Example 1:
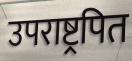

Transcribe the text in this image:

उपराष्ट्रपित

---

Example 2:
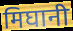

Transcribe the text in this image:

मिघानी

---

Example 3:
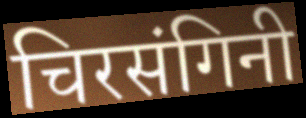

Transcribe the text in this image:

चिरसंगिनी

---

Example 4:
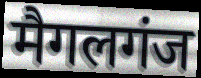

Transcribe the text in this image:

मैगलगंज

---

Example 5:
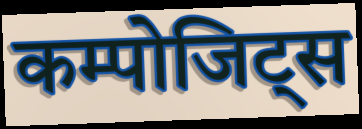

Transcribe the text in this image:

कम्पोजिट्स